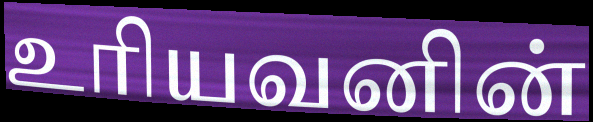
உரியவனின்